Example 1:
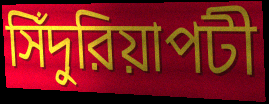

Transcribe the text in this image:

সিঁদুরিয়াপটী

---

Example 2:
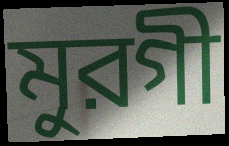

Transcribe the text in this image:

মুরগী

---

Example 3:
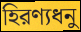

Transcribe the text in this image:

হিরণ্যধনু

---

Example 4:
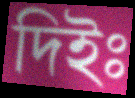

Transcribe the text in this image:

দিইঃ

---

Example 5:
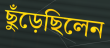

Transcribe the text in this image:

ছুঁড়েছিলেন